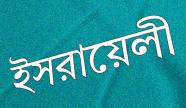
ইসরায়েলী